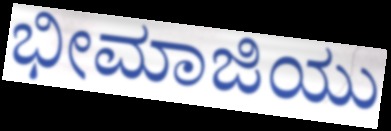
ಭೀಮಾಜಿಯು